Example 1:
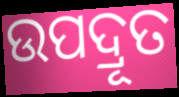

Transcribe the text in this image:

ଉପଦ୍ରୂତ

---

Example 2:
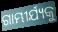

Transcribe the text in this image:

ଗାମ୍ଭୀର୍ଯ୍ୟକୁ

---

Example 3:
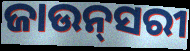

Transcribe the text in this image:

ଜାଉନ୍‌ସରୀ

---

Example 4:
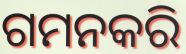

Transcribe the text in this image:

ଗମନକରି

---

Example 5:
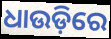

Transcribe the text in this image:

ଧାଉଡ଼ିରେ